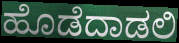
ಹೊಡೆದಾಡಲಿ